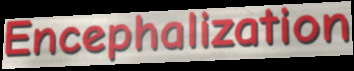
Encephalization